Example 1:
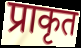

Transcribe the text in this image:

प्राकृत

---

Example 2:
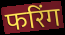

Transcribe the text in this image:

फरिंग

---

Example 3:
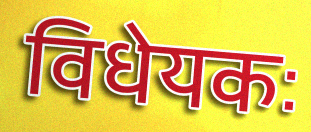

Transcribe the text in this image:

विधेयकः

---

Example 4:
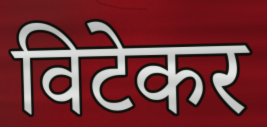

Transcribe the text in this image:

विटेकर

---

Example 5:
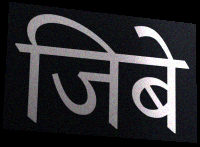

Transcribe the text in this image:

जिबे